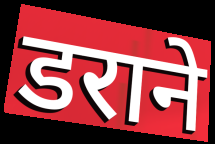
डराने